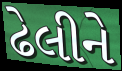
ઢેલીને